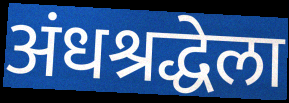
अंधश्रद्धेला